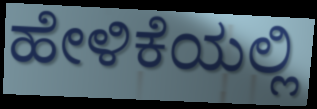
ಹೇಳಿಕೆಯಲ್ಲಿ